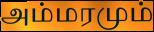
அம்மரமும்